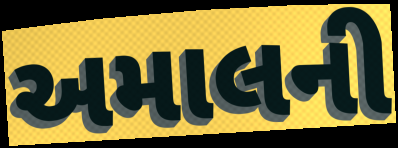
અમાલની